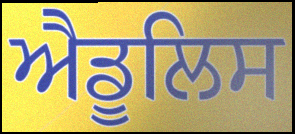
ਐਡੂਲਿਸ